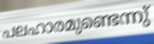
പലഹാരമുണ്ടെന്നു്